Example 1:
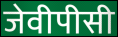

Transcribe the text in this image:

जेवीपीसी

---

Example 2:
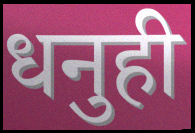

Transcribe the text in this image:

धनुही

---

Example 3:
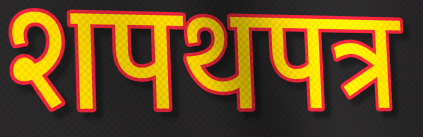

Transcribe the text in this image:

शपथपत्र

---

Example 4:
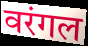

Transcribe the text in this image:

वरंगल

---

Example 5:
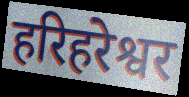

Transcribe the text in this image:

हरिहरेश्वर